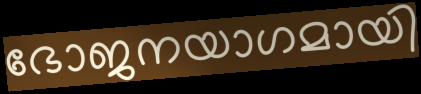
ഭോജനയാഗമായി